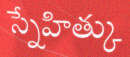
స్నేహిత్కు